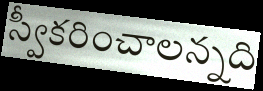
స్వీకరించాలన్నది